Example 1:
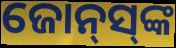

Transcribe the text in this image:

ଜୋନ୍‌ସ୍‌ଙ୍କ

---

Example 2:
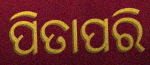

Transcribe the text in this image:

ପିତାପରି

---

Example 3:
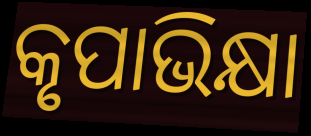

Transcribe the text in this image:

କୃପାଭିକ୍ଷା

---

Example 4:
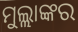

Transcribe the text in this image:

ମୁଲ୍ଲାଙ୍କର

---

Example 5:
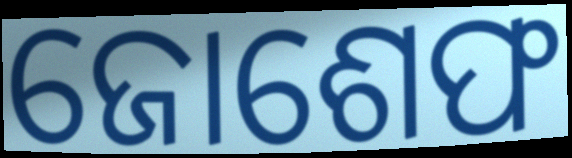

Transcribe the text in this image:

ଜୋଶେଫ